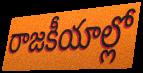
రాజకీయాల్లో